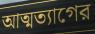
আত্মত্যাগের